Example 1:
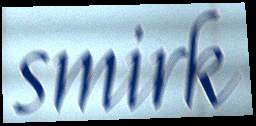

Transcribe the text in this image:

smirk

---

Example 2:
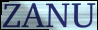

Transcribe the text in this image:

ZANU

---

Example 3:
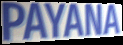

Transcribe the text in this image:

PAYANA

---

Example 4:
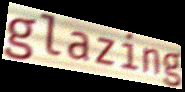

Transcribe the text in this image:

glazing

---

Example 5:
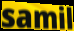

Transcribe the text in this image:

samil